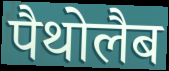
पैथोलैब